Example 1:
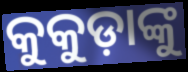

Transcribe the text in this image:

କୁକୁଡ଼ାଙ୍କୁ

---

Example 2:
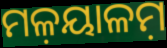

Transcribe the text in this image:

ମଳ଼ୟାଳମ଼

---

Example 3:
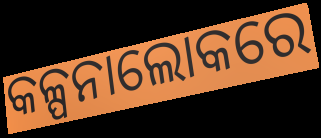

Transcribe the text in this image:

କଳ୍ପନାଲୋକରେ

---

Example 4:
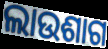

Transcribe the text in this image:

ଲାଉଶାଗ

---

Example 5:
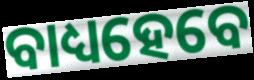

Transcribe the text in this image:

ବାଧ୍ୟହେବେ